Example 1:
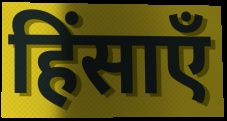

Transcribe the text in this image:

हिंसाएँ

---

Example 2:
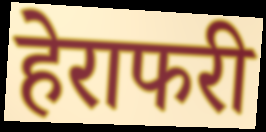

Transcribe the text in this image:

हेराफरी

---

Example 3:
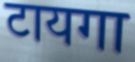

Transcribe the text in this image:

टायगा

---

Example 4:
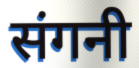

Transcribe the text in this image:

संगनी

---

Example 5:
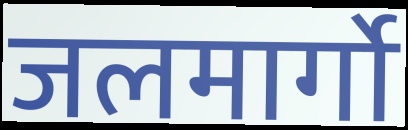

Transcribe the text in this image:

जलमार्गो